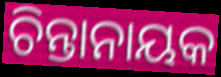
ଚିନ୍ତାନାୟକ